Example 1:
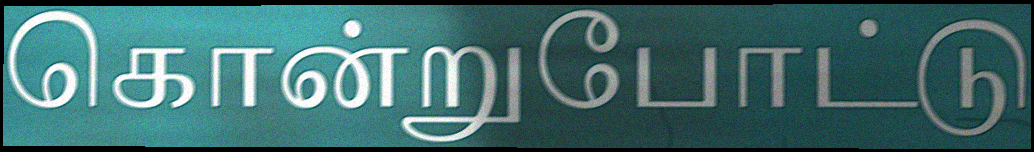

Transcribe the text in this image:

கொன்றுபோட்டு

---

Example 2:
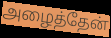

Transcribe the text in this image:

அழைத்தேன்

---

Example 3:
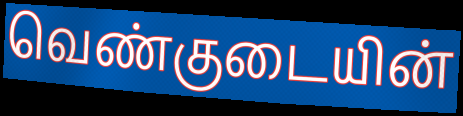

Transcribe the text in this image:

வெண்குடையின்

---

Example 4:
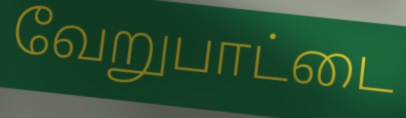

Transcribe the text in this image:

வேறுபாட்டை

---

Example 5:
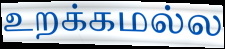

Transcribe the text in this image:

உறக்கமல்ல